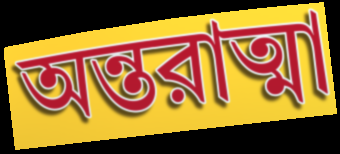
অন্তরাত্মা